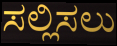
ಸಲ್ಲಿಸಲು